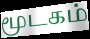
மூடகம்